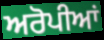
ਅਰੋਪੀਆਂ